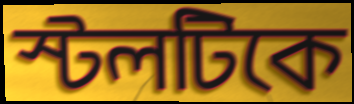
স্টলটিকে